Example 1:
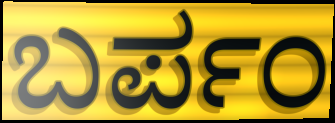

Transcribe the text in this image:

ಬರ್ಪಂ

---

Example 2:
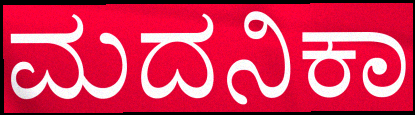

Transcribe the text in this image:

ಮದನಿಕಾ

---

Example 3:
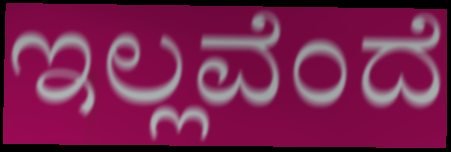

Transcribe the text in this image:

ಇಲ್ಲವೆಂದೆ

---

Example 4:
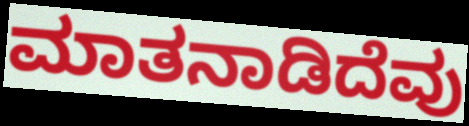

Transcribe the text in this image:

ಮಾತನಾಡಿದೆವು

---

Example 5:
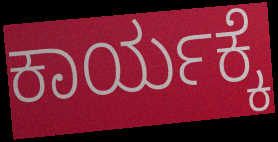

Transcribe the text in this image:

ಕಾರ್ಯಕ್ಕೆ